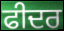
ਫੀਦਰ